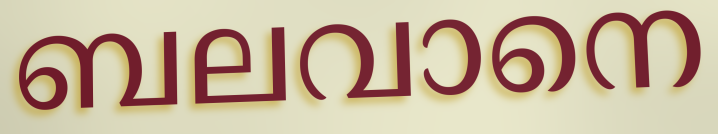
ബലവാനെ